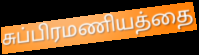
சுப்பிரமணியத்தை